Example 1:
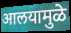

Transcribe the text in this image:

आलयामुळे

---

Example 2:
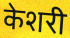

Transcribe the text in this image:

केशरी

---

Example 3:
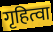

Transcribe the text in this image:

गृहित्वा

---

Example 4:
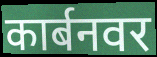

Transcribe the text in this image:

कार्बनवर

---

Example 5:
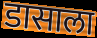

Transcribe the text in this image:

डासाला